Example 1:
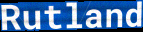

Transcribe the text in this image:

Rutland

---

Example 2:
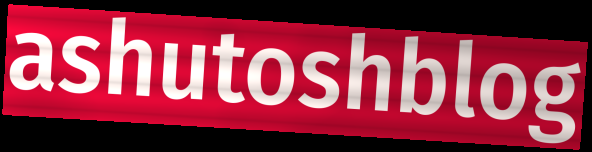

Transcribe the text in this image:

ashutoshblog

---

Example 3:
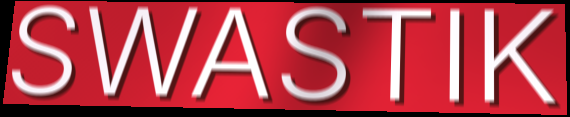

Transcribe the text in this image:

SWASTIK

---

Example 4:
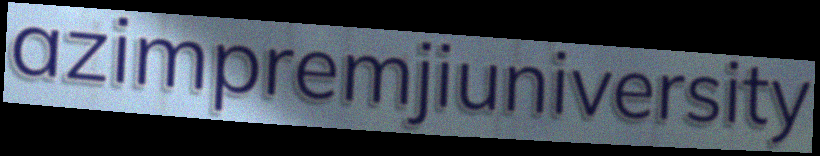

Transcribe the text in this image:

azimpremjiuniversity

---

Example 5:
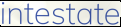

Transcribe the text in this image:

intestate